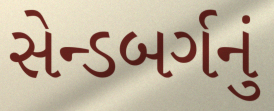
સેન્ડબર્ગનું